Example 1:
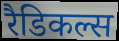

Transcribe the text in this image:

रैडिकल्स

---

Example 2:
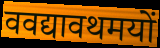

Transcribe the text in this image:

ववद्यावथमयों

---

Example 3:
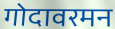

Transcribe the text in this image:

गोदावरमन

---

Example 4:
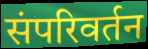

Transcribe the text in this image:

संपरिवर्तन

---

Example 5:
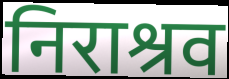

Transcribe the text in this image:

निराश्रव